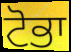
ਟੋਭਾ